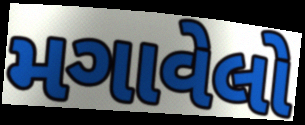
મગાવેલો